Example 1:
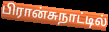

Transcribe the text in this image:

பிரான்சுநாட்டில்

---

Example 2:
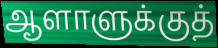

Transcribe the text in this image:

ஆளாளுக்குத்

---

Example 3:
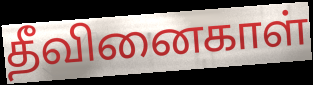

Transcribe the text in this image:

தீவினைகாள்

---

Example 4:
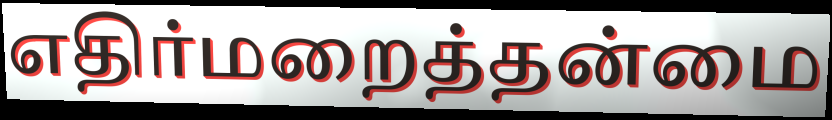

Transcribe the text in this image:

எதிர்மறைத்தன்மை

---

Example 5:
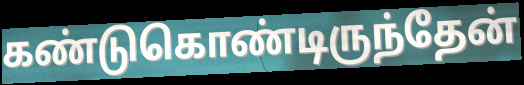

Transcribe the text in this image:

கண்டுகொண்டிருந்தேன்